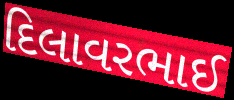
દિલાવરભાઈ